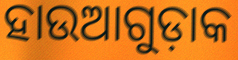
ହାଉଆଗୁଡ଼ାକ